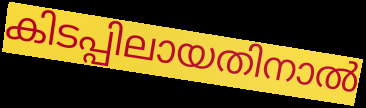
കിടപ്പിലായതിനാൽ